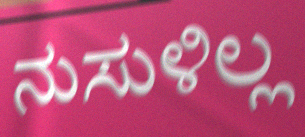
ನುಸುಳಿಲ್ಲ